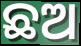
ଛଅ